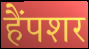
हैंपशर